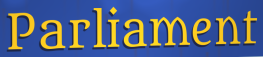
Parliament